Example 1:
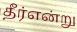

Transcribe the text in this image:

தீர்என்று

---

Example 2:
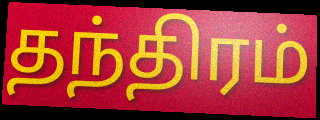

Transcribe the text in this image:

தந்திரம்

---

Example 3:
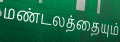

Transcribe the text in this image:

மண்டலத்தையும்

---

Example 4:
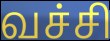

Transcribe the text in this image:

வச்சி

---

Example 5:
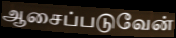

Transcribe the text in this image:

ஆசைப்படுவேன்